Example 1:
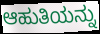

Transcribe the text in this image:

ಆಹುತಿಯನ್ನು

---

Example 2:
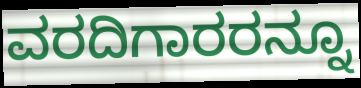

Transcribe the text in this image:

ವರದಿಗಾರರನ್ನೂ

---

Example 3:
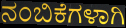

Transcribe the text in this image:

ನಂಬಿಕೆಗಳಾಗಿ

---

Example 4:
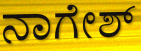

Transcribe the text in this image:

ನಾಗೇಶ್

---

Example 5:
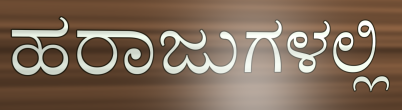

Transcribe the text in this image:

ಹರಾಜುಗಳಲ್ಲಿ